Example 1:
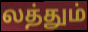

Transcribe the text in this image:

லத்தும்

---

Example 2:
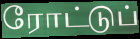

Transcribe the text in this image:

ரோட்டுப்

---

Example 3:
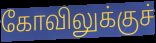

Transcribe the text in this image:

கோவிலுக்குச்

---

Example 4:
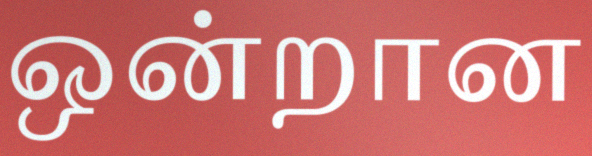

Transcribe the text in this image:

ஒன்றான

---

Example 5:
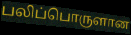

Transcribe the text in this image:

பலிப்பொருளான